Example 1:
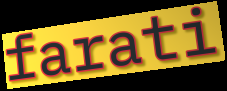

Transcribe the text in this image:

farati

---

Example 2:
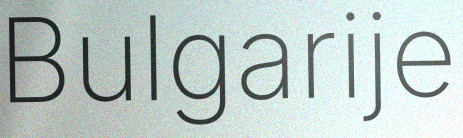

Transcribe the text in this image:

Bulgarije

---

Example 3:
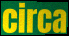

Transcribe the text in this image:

circa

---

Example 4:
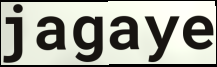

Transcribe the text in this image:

jagaye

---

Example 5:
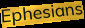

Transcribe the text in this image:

Ephesians